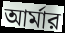
আর্মার